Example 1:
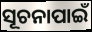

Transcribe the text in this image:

ସୂଚନାପାଇଁ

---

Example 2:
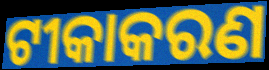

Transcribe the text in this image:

ଟୀକାକରଣ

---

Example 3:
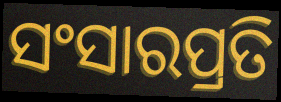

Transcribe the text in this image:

ସଂସାରପ୍ରତି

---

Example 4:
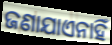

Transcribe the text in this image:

ଜଣାଯାଏନାହିଁ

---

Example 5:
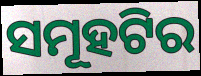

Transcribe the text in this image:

ସମୂହଟିର